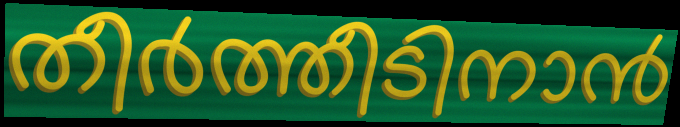
തീർത്തീടിനാൻ